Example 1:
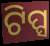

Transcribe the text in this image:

ଟିପ୍ସ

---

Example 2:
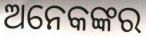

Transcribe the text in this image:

ଅନେକଙ୍କର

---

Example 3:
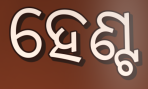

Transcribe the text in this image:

ହେଣ୍ଟ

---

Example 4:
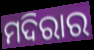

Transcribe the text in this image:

ମଦିରାର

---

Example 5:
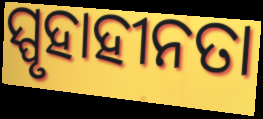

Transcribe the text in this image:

ସ୍ପୃହାହୀନତା